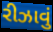
રીઝાવું